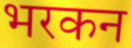
भरकन